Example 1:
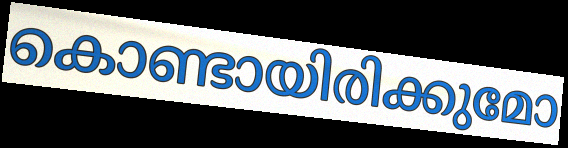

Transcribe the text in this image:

കൊണ്ടായിരിക്കുമോ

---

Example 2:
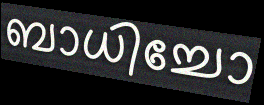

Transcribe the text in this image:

ബാധിച്ചോ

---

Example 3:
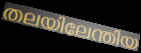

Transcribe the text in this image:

തലയിലേന്തിയ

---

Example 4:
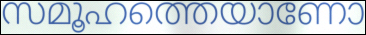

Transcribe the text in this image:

സമൂഹത്തെയാണോ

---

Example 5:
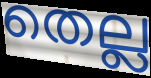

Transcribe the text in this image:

തെല്ല